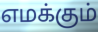
எமக்கும்